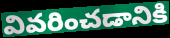
వివరించడానికి